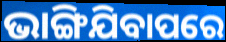
ଭାଙ୍ଗିଯିବାପରେ